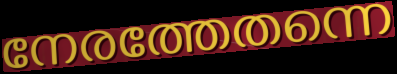
നേരത്തേതന്നെ